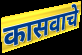
कासवाचे